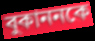
বুকাননকে